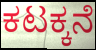
ಕಟಕ್ಕನೆ